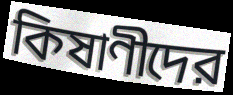
কিষাণীদের